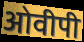
ओवीपी